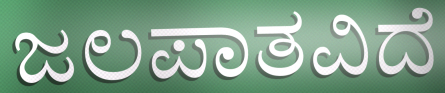
ಜಲಪಾತವಿದೆ